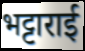
भट्टाराई